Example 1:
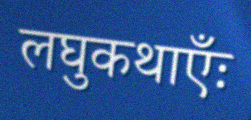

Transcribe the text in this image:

लघुकथाएँः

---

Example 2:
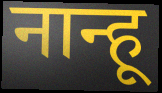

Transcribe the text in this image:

नान्हू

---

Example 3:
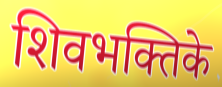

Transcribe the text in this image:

शिवभक्तिके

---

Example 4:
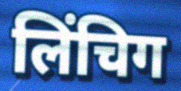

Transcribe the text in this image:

लिंचिग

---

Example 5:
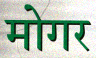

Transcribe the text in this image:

मोगर